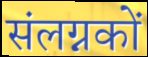
संलग्नकों